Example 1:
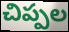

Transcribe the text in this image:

చిప్పల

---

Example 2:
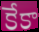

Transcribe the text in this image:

కేకా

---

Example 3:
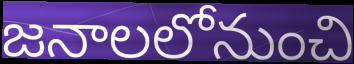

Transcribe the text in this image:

జనాలలోనుంచి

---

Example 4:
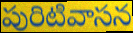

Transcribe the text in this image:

పురిటివాసన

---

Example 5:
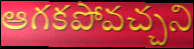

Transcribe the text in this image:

ఆగకపోవచ్చని